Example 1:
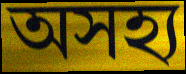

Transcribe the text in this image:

অসহ্য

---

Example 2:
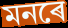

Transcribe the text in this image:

মনৰে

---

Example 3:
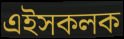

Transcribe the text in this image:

এইসকলক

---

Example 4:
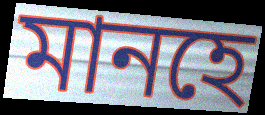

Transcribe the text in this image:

মানহে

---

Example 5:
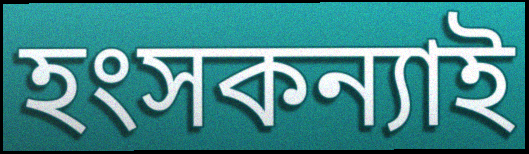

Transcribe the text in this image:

হংসকন্যাই